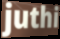
juthi